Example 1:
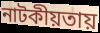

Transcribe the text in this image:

নাটকীয়তায়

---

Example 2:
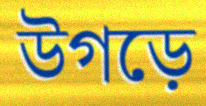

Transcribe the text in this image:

উগড়ে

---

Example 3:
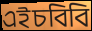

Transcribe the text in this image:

এইচবিবি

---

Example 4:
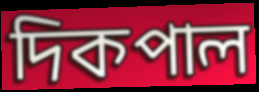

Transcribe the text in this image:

দিকপাল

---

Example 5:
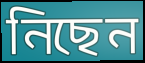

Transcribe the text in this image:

নিছেন